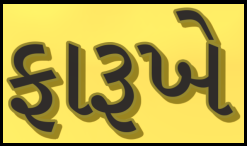
ફારૂખે